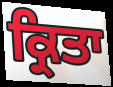
ਕ੍ਰਿਤਾ